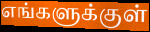
எங்களுக்குள்